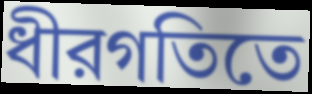
ধীরগতিতে